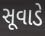
સૂવાડે